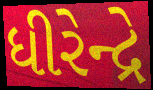
ધીરેન્દ્રે